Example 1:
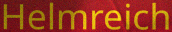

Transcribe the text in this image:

Helmreich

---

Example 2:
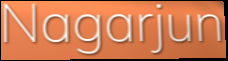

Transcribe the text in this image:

Nagarjun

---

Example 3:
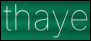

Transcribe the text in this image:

thaye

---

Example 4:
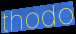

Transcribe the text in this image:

thodo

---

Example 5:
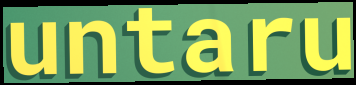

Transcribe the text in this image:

untaru